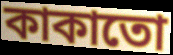
কাকাতো